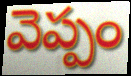
వెప్పం